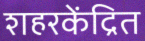
शहरकेंद्रित